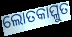
ଲୋତକାପ୍ଳୁତ